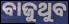
ବାଜୁଥୁବ